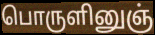
பொருளினுஞ்